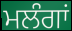
ਮਲੰਗਾਂ